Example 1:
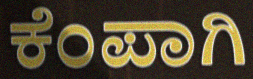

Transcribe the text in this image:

ಕೆಂಪಾಗಿ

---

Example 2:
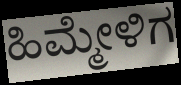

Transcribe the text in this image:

ಹಿಮ್ಮೇಳಿಗ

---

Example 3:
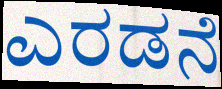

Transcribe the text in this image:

ಎರಡನೆ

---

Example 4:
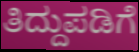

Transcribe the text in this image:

ತಿದ್ದುಪಡಿಗೆ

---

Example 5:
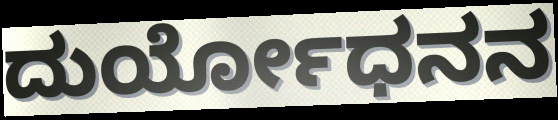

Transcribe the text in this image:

ದುರ್ಯೋಧನನ